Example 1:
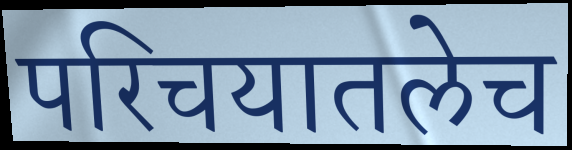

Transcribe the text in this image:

परिचयातलेच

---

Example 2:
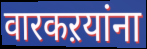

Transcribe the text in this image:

वारकऱयांना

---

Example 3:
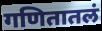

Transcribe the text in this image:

गणितातलं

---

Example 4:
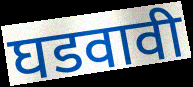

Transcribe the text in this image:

घडवावी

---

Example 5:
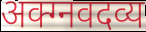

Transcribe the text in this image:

अक्ग्नवदव्य